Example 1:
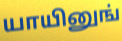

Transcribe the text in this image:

யாயினுங்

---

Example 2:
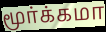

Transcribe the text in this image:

மூர்க்கமா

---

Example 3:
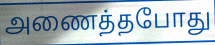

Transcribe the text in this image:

அணைத்தபோது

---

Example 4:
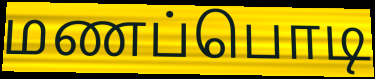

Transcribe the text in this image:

மணப்பொடி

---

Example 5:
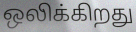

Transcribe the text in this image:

ஒலிக்கிறது